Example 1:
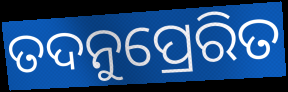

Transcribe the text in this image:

ତଦନୁପ୍ରେରିତ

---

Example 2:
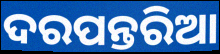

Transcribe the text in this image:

ଦରପନ୍ତରିଆ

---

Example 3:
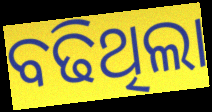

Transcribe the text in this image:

ବଢିଥିଲା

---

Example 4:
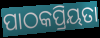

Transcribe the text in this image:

ପାଠକପ୍ରିୟତା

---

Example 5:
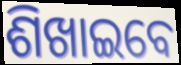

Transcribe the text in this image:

ଶିଖାଇବେ